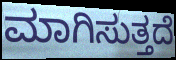
ಮಾಗಿಸುತ್ತದೆ